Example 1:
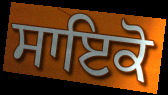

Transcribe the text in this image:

ਸਾਇਕੋ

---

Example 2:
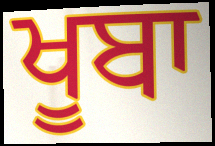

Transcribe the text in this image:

ਖੂਬਾ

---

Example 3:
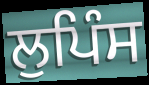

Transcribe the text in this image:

ਲੁਪਿੰਸ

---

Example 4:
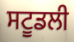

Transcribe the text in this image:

ਸਟੂਡਲੀ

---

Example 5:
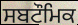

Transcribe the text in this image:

ਸਬਟੌਮਿਕ